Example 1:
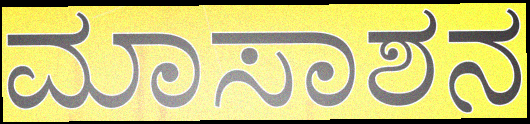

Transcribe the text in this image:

ಮಾಸಾಶನ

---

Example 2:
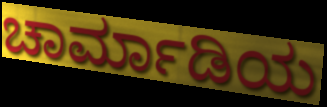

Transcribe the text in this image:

ಚಾರ್ಮಾಡಿಯ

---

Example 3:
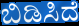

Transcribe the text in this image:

ಬಿಡಿಸಿದೆ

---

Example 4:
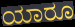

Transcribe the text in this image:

ಯಾರೂ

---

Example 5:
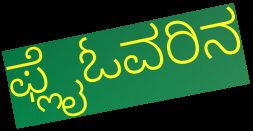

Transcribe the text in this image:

ಫ್ಲೈಓವರಿನ